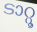
ടാറ്റൂ